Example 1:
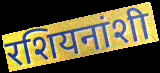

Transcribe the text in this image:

रशियनांशी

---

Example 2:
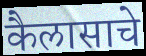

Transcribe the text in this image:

कैलासाचे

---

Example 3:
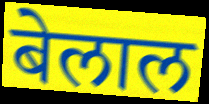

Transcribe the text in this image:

बेलाल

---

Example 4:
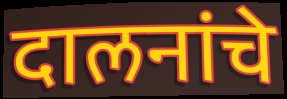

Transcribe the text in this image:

दालनांचे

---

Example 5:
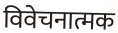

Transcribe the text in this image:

विवेचनात्मक